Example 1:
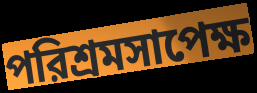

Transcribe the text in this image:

পরিশ্রমসাপেক্ষ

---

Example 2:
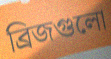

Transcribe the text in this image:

ব্রিজগুলো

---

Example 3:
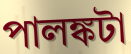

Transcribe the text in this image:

পালঙ্কটা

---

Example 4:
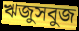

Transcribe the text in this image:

ঋজুসবুজ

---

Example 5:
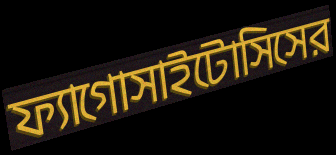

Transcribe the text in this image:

ফ্যাগোসাইটোসিসের